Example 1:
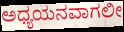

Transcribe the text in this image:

ಅಧ್ಯಯನವಾಗಲೀ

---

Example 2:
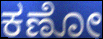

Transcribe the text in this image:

ಕಣೋ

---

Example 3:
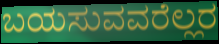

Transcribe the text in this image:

ಬಯಸುವವರೆಲ್ಲರ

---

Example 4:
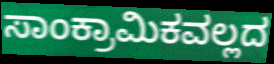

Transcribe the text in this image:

ಸಾಂಕ್ರಾಮಿಕವಲ್ಲದ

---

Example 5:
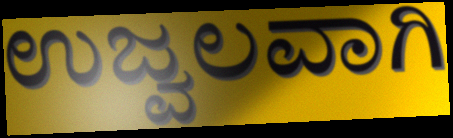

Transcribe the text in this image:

ಉಜ್ವಲವಾಗಿ